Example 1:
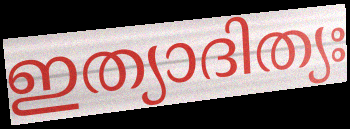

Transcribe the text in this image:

ഇത്യാദിത്യഃ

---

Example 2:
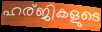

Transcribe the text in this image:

ഹര്ജികളുടെ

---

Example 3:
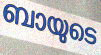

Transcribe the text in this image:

ബായുടെ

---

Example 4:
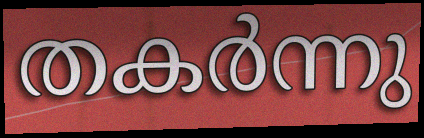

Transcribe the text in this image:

തകർന്നു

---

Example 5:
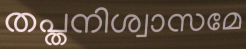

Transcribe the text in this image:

തപ്തനിശ്വാസമേ